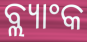
ବ୍ଲ୍ଯାଂକ